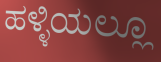
ಹಳ್ಳಿಯಲ್ಲೂ